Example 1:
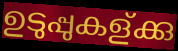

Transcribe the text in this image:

ഉടുപ്പുകള്ക്കു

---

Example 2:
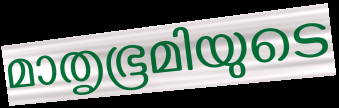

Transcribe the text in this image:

മാതൃഭൂമിയുടെ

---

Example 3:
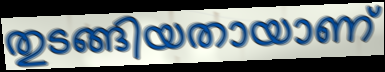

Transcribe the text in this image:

തുടങ്ങിയതായാണ്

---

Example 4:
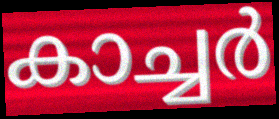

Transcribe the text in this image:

കാച്ചർ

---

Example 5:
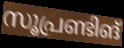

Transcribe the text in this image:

സൂപ്രണ്ടിങ്